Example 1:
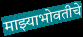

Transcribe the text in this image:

माझ्याभोवतीचे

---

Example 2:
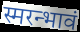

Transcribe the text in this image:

स्मरन्भावं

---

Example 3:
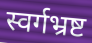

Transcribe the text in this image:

स्वर्गभ्रष्ट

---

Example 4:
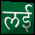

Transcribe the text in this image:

लई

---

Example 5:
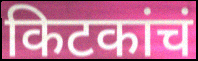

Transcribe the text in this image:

किटकांचं